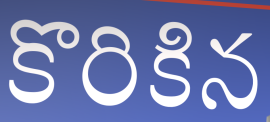
కొరికిన